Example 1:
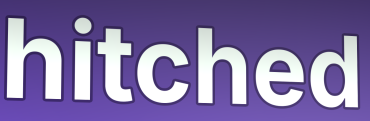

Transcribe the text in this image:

hitched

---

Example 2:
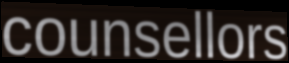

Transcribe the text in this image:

counsellors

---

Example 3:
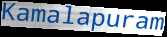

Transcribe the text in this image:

Kamalapuram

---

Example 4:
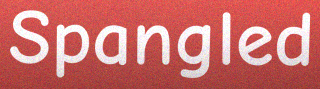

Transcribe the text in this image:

Spangled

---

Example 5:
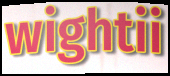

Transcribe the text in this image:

wightii